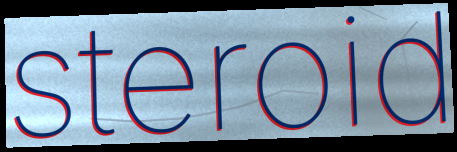
steroid